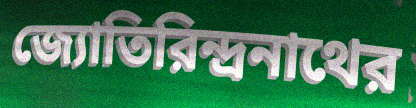
জ্যোতিরিন্দ্রনাথের